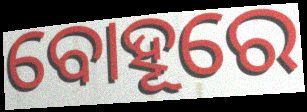
ବୋହୂରେ